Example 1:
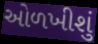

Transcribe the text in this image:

ઓળખીશું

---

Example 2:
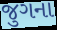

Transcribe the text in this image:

જુગના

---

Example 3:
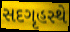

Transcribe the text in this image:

સદગૃહસ્થે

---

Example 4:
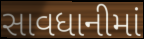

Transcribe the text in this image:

સાવધાનીમાં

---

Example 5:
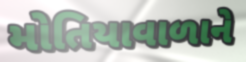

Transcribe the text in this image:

મોતિયાવાળાને